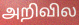
அறிவில